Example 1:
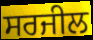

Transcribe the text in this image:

ਸਰਜੀਲ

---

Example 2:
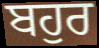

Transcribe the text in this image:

ਬਹੁਰ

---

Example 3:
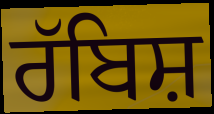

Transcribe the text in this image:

ਰੱਬਿਸ਼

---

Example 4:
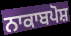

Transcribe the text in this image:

ਨਾਕਾਬਪੋਸ਼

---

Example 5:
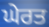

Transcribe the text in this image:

ਘੇਰਤ